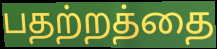
பதற்றத்தை